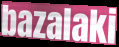
bazalaki